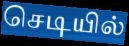
செடியில்